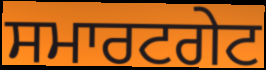
ਸਮਾਰਟਗੇਟ